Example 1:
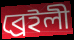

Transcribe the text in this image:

ব্রেইলী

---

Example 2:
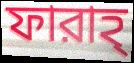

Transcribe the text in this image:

ফারাহ্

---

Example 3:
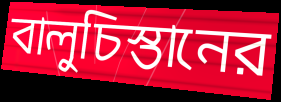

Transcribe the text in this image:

বালুচিস্তানের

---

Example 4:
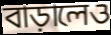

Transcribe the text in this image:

বাড়ালেও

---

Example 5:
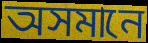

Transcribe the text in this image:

অসমানে